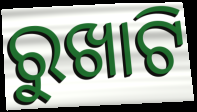
ରୁଖାଟି